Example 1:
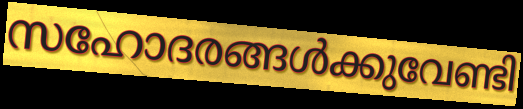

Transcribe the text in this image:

സഹോദരങ്ങൾക്കുവേണ്ടി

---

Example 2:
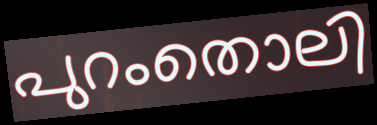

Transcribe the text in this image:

പുറംതൊലി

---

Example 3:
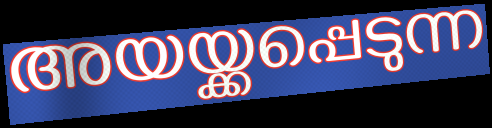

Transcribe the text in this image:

അയയ്ക്കപ്പെടുന്ന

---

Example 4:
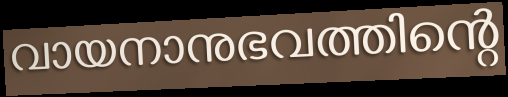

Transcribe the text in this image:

വായനാനുഭവത്തിന്റെ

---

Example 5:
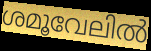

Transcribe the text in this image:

ശമൂവേലിൽ